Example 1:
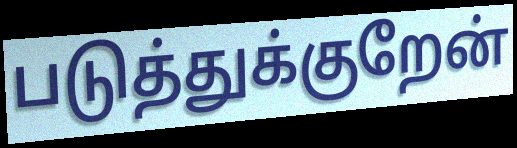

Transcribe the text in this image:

படுத்துக்குறேன்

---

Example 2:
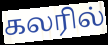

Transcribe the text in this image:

கலரில்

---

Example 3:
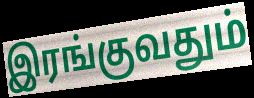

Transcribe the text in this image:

இரங்குவதும்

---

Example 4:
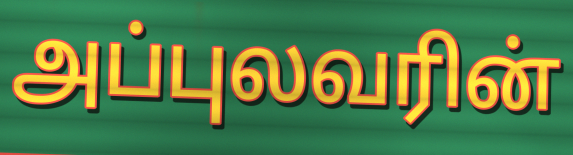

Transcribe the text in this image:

அப்புலவரின்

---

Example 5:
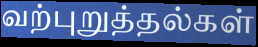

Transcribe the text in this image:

வற்புறுத்தல்கள்